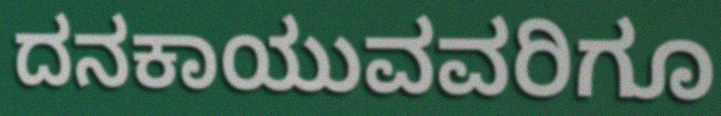
ದನಕಾಯುವವರಿಗೂ